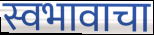
स्वभावाचा